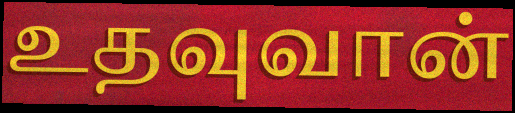
உதவுவான்